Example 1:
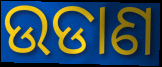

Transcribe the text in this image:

ଉଡାଣ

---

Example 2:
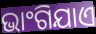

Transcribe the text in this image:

ଭାଂଗିଯାଏ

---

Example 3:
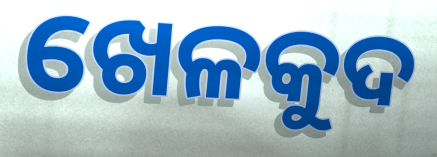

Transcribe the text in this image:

ଖେଳକୁଦ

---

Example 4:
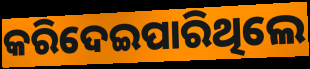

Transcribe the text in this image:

କରିଦେଇପାରିଥିଲେ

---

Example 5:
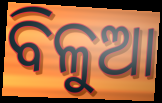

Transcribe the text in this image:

ବିଳୁଆ